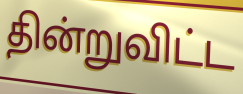
தின்றுவிட்ட